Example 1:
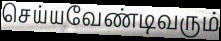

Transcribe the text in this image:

செய்யவேண்டிவரும்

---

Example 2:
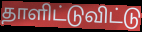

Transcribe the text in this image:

தாளிட்டுவிட்டு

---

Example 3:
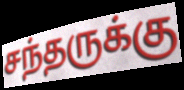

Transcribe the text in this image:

சந்தருக்கு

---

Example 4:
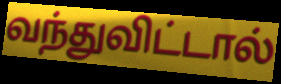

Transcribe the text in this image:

வந்துவிட்டால்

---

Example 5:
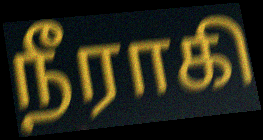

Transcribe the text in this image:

நீராகி